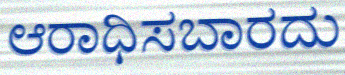
ಆರಾಧಿಸಬಾರದು